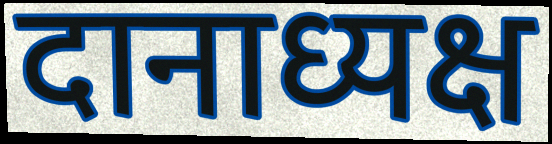
दानाध्यक्ष